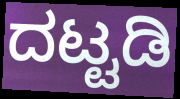
ದಟ್ಟಡಿ